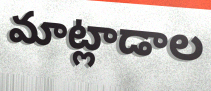
మాట్లాడాల